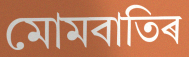
মোমবাতিৰ